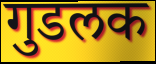
गुडलक